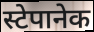
स्टेपानेक